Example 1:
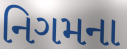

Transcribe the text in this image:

નિગમના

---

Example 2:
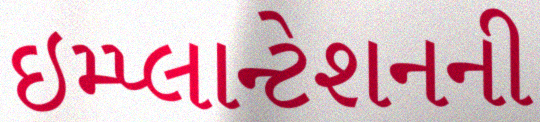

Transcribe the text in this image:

ઇમ્પ્લાન્ટેશનની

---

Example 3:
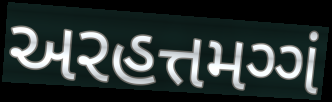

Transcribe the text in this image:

અરહત્તમગ્ગં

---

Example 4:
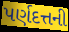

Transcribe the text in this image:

પર્ણદત્તની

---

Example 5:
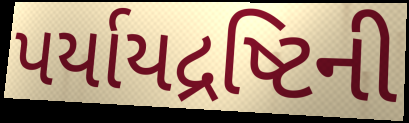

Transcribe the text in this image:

પર્યાયદ્રષ્ટિની